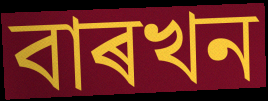
বাৰখন